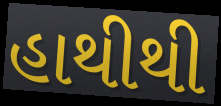
હાથીથી